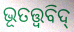
ଭୂତତ୍ତ୍ବବିଦ୍